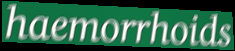
haemorrhoids